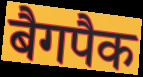
बैगपैक